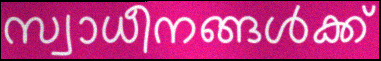
സ്വാധീനങ്ങൾക്ക്